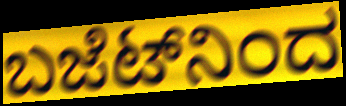
ಬಜೆಟ್‌ನಿಂದ